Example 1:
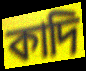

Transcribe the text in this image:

কাদি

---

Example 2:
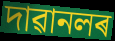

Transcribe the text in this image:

দাৱানলৰ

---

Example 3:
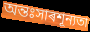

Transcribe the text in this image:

অন্তঃসাৰশূন্যতা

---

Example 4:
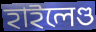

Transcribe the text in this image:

হাইলেণ্ড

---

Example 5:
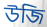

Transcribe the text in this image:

উজি